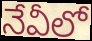
నేవీలో